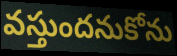
వస్తుందనుకోను